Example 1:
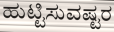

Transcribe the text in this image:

ಹುಟ್ಟಿಸುವಷ್ಟರ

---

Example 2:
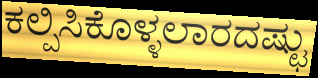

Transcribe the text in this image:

ಕಲ್ಪಿಸಿಕೊಳ್ಳಲಾರದಷ್ಟು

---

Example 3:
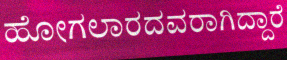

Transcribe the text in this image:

ಹೋಗಲಾರದವರಾಗಿದ್ದಾರೆ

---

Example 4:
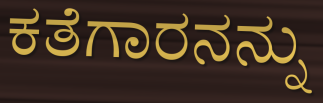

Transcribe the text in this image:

ಕತೆಗಾರನನ್ನು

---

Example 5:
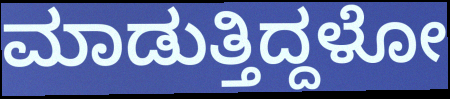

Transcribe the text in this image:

ಮಾಡುತ್ತಿದ್ದಳೋ